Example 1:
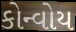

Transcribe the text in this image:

કોન્વોય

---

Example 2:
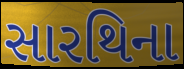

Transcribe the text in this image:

સારથિના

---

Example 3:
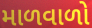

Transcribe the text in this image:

માળવાળો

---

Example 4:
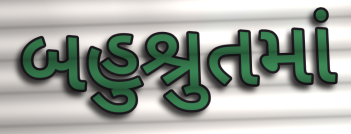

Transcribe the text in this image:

બહુશ્રુતમાં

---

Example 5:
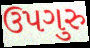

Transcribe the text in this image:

ઉપગુરુ